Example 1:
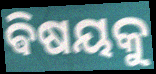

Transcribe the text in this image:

ଵିଷୟକୁ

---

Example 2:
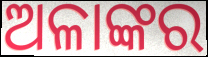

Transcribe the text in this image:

ଅଳାଙ୍କର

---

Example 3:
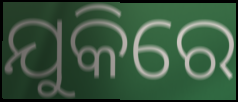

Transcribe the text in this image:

ଯୁକିରେ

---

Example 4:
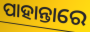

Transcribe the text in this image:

ପାହାନ୍ତାରେ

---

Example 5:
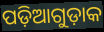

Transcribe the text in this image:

ପଡ଼ିଆଗୁଡ଼ାକ